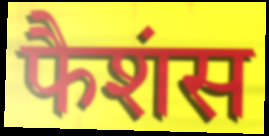
फैशंस